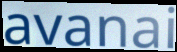
avanai